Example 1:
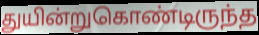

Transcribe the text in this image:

துயின்றுகொண்டிருந்த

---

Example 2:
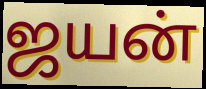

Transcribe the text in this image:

ஜயன்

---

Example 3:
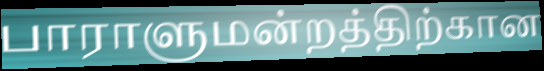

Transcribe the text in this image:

பாராளுமன்றத்திற்கான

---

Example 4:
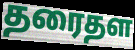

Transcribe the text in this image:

தரைதள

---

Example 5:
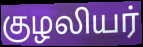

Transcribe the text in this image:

குழலியர்